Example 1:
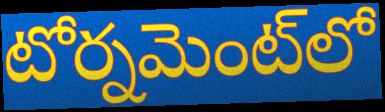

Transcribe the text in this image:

టోర్నమెంట్‌లో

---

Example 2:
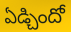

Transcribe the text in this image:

ఏడ్చిందో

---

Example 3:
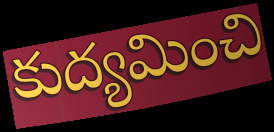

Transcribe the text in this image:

కుద్యమించి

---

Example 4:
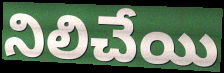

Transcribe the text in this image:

నిలిచేయి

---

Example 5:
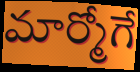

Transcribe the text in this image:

మార్మోగే